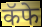
कॅफे